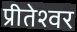
प्रीतेश्वर